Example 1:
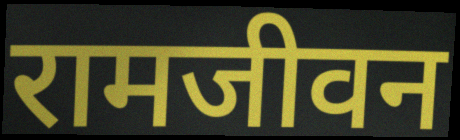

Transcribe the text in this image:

रामजीवन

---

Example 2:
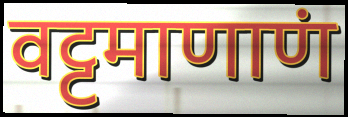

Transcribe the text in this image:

वट्टमाणाणं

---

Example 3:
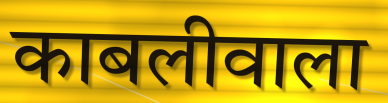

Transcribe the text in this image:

काबलीवाला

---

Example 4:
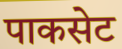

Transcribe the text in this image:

पाकसेट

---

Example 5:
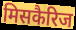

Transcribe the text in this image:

मिसकैरिज